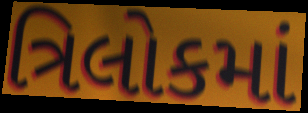
ત્રિલોકમાં